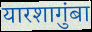
यारशागुंबा